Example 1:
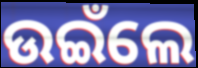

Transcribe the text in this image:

ଉଇଁଲେ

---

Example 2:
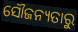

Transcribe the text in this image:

ସୌଜନ୍ୟତାରୁ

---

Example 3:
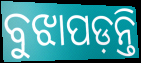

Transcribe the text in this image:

ବୁଝାପଡ଼ନ୍ତି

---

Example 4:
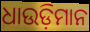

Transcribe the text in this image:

ଧାଉଡ଼ିମାନ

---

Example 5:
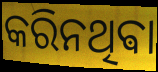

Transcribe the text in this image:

କରିନଥିଵା